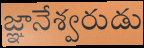
జ్ఞానేశ్వరుడు